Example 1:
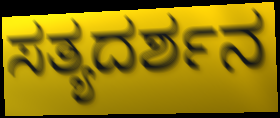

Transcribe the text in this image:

ಸತ್ಯದರ್ಶನ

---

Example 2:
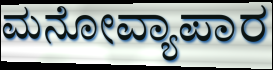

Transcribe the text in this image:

ಮನೋವ್ಯಾಪಾರ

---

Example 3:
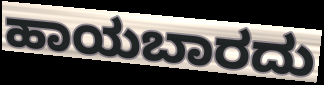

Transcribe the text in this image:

ಹಾಯಬಾರದು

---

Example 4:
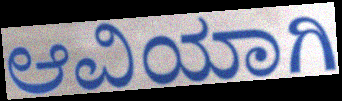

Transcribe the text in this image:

ಆವಿಯಾಗಿ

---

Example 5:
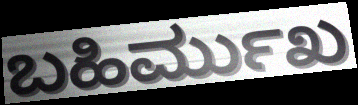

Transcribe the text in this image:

ಬಹಿರ್ಮುಖ